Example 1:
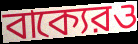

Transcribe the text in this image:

বাক্যেরও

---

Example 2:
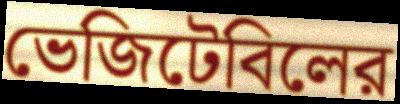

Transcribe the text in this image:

ভেজিটেবিলের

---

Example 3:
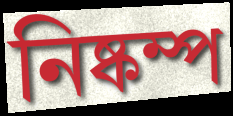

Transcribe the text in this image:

নিষ্কম্প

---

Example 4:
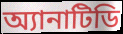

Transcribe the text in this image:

অ্যানাটিডি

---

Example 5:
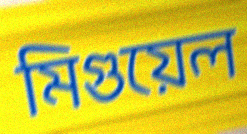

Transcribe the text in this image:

মিগুয়েল